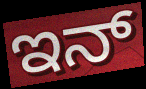
ಇನ್